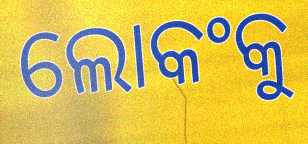
ଲୋକଂକୁ